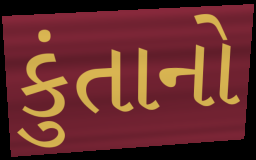
કુંતાનો